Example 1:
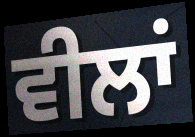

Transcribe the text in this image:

ਵੀਲਾਂ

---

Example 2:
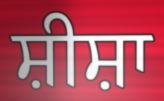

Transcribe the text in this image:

ਸ਼ੀਸ਼ਾ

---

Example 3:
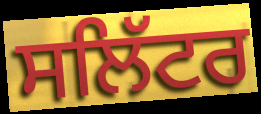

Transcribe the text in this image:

ਸਲਿੱਟਰ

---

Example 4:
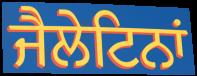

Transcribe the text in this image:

ਜੈਲੇਟਿਨਾਂ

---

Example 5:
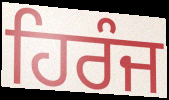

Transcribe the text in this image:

ਹਿਰੰਜ